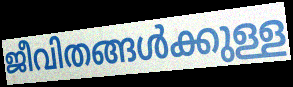
ജീവിതങ്ങൾക്കുള്ള